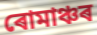
ৰোমাঞ্চৰ